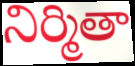
నిర్మితా